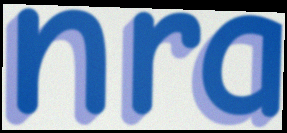
nra